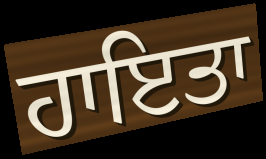
ਹਾਇਤਾ